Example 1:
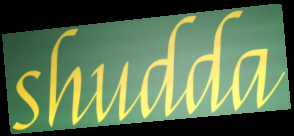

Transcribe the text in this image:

shudda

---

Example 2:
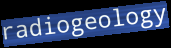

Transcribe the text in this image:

radiogeology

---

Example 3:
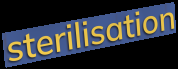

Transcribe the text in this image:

sterilisation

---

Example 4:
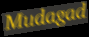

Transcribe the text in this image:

Mudagad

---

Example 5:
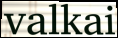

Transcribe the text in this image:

valkai